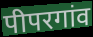
पीपरगांव